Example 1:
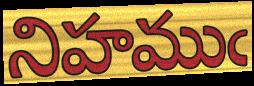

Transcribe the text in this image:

నిహముఁ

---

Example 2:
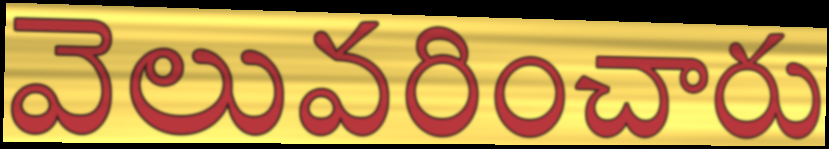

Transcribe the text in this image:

వెలువరించారు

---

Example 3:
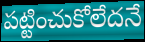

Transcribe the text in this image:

పట్టించుకోలేదనే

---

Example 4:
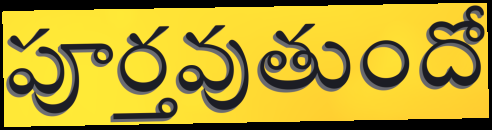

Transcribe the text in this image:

పూర్తవుతుందో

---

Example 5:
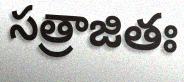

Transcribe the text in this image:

సత్రాజితః